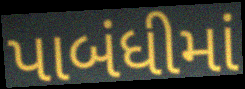
પાબંધીમાં